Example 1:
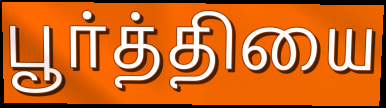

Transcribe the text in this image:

பூர்த்தியை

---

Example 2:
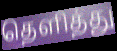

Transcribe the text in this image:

தெளித்து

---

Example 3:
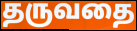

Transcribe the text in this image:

தருவதை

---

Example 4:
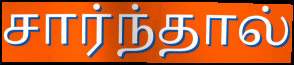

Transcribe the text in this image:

சார்ந்தால்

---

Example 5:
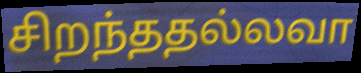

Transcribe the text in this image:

சிறந்ததல்லவா